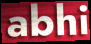
abhi